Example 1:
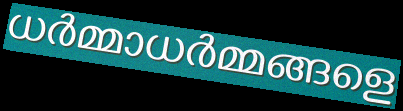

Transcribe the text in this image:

ധർമ്മാധർമ്മങ്ങളെ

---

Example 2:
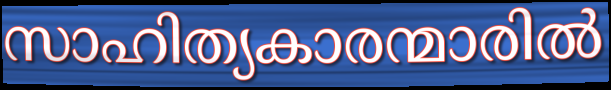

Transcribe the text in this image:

സാഹിത്യകാരന്മാരിൽ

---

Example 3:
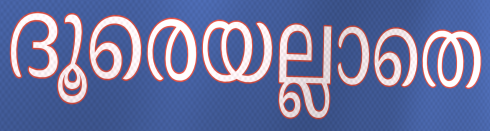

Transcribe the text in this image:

ദൂരെയല്ലാതെ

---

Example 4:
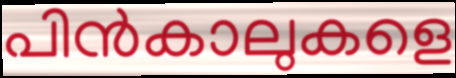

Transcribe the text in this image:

പിൻകാലുകളെ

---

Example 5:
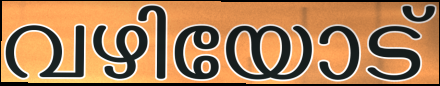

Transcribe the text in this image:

വഴിയോട്